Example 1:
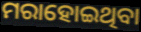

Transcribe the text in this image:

ମରାହୋଇଥିବା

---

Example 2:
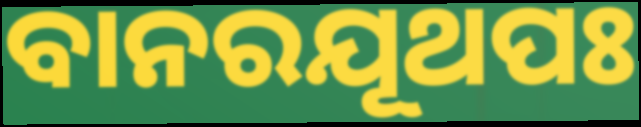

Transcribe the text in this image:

ବାନରଯୂଥପଃ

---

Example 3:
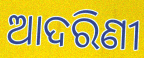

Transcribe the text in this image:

ଆଦରିଣୀ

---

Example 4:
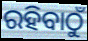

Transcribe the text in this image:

ରହିବାଠୁଁ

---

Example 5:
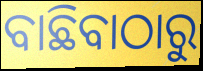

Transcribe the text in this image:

ବାଛିବାଠାରୁ